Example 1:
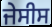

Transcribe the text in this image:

ਜੇਸੀਸ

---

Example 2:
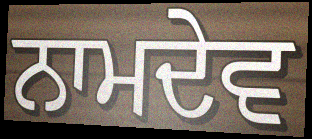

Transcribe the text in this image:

ਨਾਮਦੇਵ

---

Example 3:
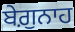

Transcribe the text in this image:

ਬੇਗ਼ੁਨਾਹ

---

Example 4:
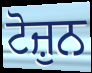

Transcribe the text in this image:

ਟੋਜ਼ੁਨ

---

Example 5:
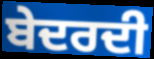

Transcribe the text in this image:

ਬੇਦਰਦੀ